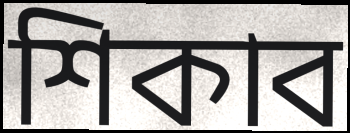
শিকাব